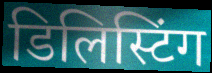
डिलिस्टिंग